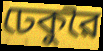
ঢেকুৱৈ